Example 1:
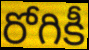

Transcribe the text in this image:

రోగికీ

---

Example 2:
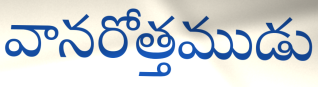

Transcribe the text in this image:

వానరోత్తముడు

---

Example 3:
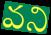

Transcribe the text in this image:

వని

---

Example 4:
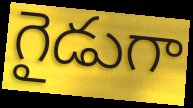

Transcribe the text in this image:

గైడుగా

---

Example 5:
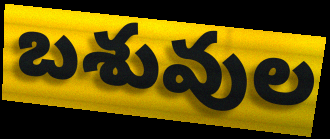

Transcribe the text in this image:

బశువుల